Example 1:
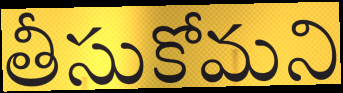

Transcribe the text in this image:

తీసుకోమని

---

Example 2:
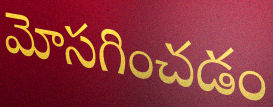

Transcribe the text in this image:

మోసగించడం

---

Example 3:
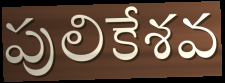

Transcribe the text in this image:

పులికేశవ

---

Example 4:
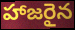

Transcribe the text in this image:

హాజరైన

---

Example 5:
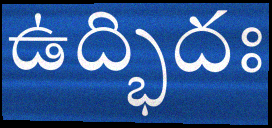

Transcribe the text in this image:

ఉద్భిదః